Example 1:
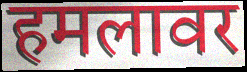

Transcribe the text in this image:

हमलावर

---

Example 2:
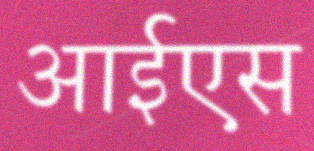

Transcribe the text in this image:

आईएस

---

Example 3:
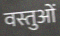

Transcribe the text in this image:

वस्तुओं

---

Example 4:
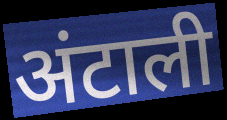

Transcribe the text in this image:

अंटाली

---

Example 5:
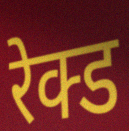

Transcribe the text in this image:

रेक्ड